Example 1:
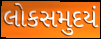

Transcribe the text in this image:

લોકસમુદયં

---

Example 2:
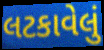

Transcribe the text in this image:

લટકાવેલું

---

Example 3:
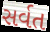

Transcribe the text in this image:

સર્વત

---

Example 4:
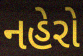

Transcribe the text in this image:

નહેરો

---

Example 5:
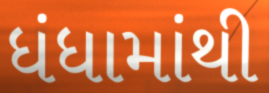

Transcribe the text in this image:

ધંધામાંથી